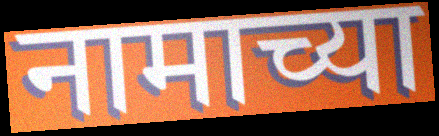
नामाच्या